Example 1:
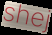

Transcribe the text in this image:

shej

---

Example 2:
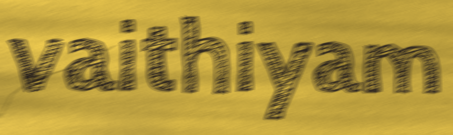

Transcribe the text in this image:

vaithiyam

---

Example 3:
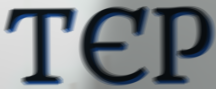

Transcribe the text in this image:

TEP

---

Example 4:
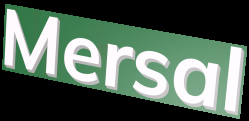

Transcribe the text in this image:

Mersal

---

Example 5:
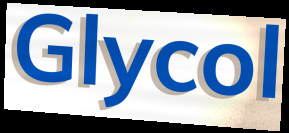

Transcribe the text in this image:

Glycol